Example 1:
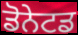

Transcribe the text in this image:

ਡੋਨੇਟਡ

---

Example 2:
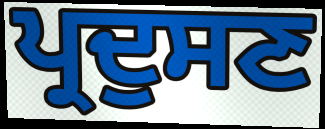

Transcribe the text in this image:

ਪ੍ਰਦੁਸਣ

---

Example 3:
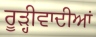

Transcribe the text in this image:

ਰੂੜ੍ਹੀਵਾਦੀਆਂ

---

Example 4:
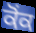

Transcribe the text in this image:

ਕੋਂਕ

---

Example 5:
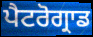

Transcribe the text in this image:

ਪੈਟਰੋਗ੍ਰਾਡ